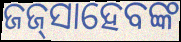
ଜଜ୍‌ସାହେବଙ୍କ